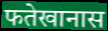
फतेखानास